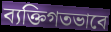
ব্যক্তিগতভাবে